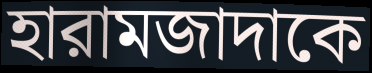
হারামজাদাকে